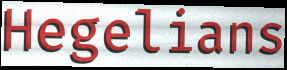
Hegelians